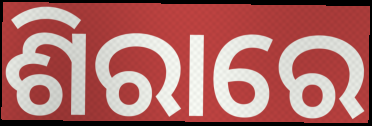
ଶିରାରେ